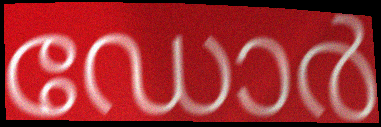
ഡോർ